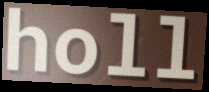
holl